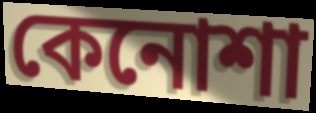
কেনোশা